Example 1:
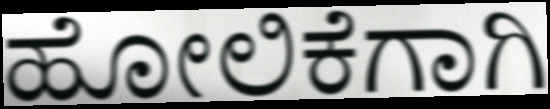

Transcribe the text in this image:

ಹೋಲಿಕೆಗಾಗಿ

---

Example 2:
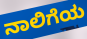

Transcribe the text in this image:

ನಾಲಿಗೆಯ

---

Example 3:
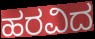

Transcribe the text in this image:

ಹರವಿದ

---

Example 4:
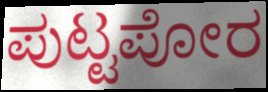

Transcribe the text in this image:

ಪುಟ್ಟಪೋರ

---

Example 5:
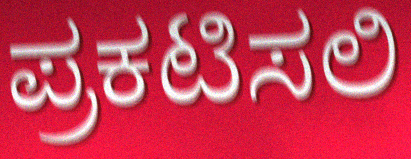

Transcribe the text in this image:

ಪ್ರಕಟಿಸಲಿ